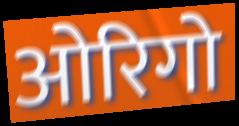
ओरिगो